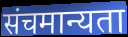
संचमान्यता